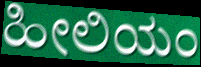
ಹೀಲಿಯಂ